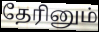
தேரினும்